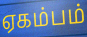
ஏகம்பம்